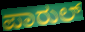
ಪಾರುಲ್